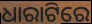
ଧାରାଟିରେ